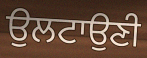
ਉਲਟਾਉਣੀ